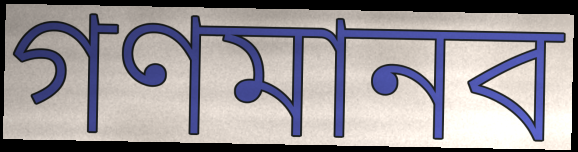
গণমানব